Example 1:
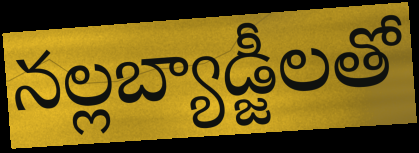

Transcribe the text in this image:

నల్లబ్యాడ్జీలతో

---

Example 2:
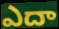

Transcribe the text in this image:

ఎదా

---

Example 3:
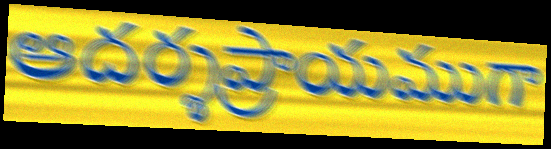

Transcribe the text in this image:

ఆదర్శప్రాయముగా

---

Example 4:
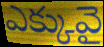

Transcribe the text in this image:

ఎక్కువై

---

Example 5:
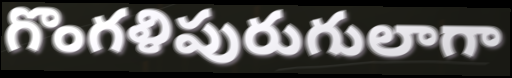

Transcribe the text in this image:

గొంగళిపురుగులాగా